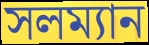
সলম্যান